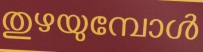
തുഴയുമ്പോൾ